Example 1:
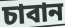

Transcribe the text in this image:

চাবান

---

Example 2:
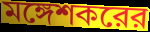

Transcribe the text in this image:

মঙ্গেশকরের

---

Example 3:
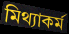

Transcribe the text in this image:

মিথ্যাকর্ম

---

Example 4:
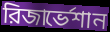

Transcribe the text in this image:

রিজার্ভেশান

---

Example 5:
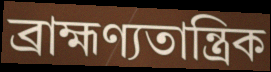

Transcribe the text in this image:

ব্রাহ্মণ্যতান্ত্রিক